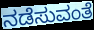
ನಡೆಸುವಂತೆ